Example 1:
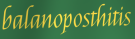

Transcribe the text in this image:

balanoposthitis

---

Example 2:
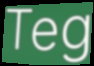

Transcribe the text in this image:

Teg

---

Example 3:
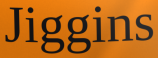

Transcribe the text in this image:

Jiggins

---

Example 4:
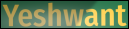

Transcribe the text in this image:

Yeshwant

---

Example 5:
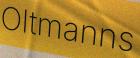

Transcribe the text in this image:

Oltmanns